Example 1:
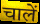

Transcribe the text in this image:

चालें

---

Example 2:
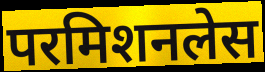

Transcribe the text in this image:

परमिशनलेस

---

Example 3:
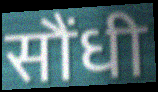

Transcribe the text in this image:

सौंधी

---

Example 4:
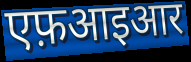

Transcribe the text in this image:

एफ़आइआर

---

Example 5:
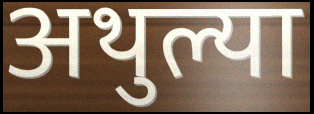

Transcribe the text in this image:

अथुल्या